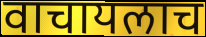
वाचायलाच